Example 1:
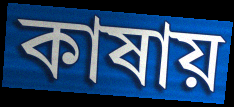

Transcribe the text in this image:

কাষায়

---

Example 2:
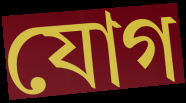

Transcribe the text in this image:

যোগ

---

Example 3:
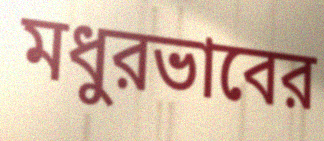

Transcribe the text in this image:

মধুরভাবের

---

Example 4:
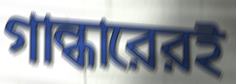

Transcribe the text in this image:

গান্ধারেরই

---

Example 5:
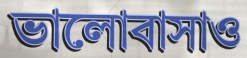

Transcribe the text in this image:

ভালোবাসাও